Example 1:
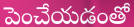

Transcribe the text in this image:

పెంచేయడంతో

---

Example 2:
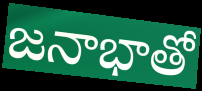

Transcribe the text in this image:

జనాభాతో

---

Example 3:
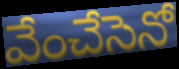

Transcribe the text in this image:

వేంచేసెనో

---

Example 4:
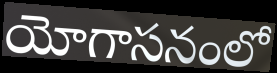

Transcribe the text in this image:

యోగాసనంలో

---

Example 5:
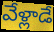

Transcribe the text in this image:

వేళ్లాడే